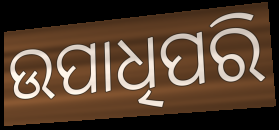
ଉପାଧିପରି